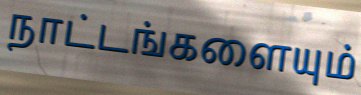
நாட்டங்களையும்